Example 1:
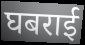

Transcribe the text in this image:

घबराई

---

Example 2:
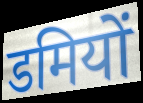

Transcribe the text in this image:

डमियों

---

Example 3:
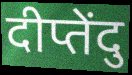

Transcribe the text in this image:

दीप्तेंदु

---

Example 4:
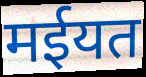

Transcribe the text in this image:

मईयत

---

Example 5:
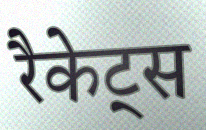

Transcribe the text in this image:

रैकेट्स